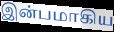
இன்பமாகிய